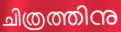
ചിത്രത്തിനു